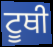
ਟੂਥੀ